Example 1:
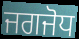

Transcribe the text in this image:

ਜਗਜੋਧ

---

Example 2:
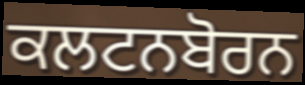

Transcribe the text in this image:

ਕਲਟਨਬੋਰਨ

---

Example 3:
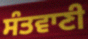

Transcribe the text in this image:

ਸੰਤਵਾਣੀ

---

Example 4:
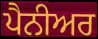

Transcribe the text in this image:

ਪੈਨੀਅਰ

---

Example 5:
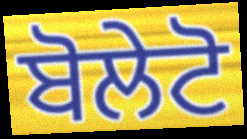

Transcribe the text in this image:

ਬੋਲੇਟੋ